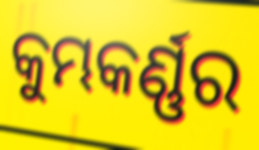
କୁମ୍ଭକର୍ଣ୍ଣର